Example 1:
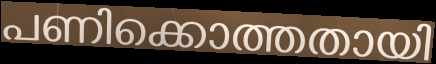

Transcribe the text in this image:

പണിക്കൊത്തതായി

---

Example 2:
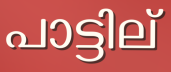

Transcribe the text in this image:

പാട്ടില്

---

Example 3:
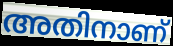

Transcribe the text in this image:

അതിനാണ്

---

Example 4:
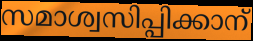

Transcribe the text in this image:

സമാശ്വസിപ്പിക്കാന്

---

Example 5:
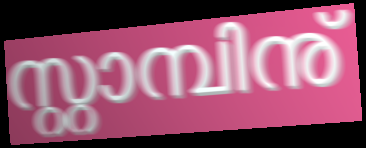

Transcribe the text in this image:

സ്റ്റാമ്പിനു്